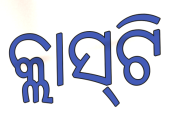
କ୍ଲାସ୍‍ଟି